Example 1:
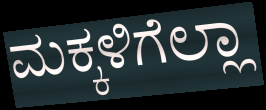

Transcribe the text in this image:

ಮಕ್ಕಳಿಗೆಲ್ಲಾ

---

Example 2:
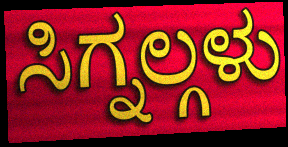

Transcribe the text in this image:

ಸಿಗ್ನಲ್ಗಳು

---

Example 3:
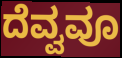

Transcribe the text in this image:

ದೆವ್ವವೂ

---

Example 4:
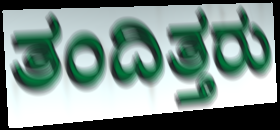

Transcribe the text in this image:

ತಂದಿತ್ತರು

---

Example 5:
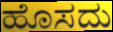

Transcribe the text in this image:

ಹೊಸದು